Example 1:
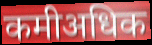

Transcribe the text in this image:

कमीअधिक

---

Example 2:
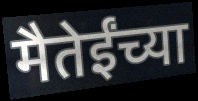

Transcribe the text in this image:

मैतेईंच्या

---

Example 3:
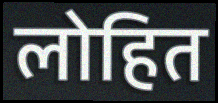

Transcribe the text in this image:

लोहित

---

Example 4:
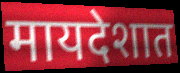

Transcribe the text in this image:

मायदेशात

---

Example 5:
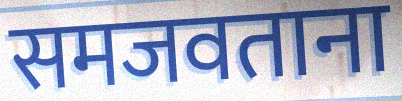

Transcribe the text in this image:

समजवताना